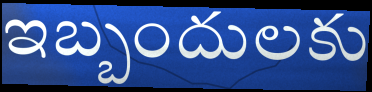
ఇబ్బందులకు